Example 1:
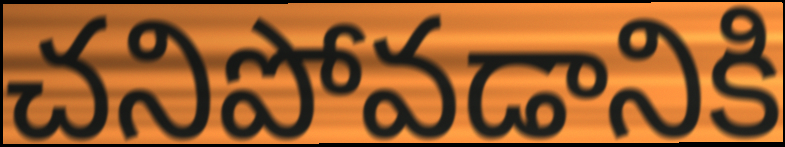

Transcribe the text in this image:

చనిపోవడానికి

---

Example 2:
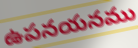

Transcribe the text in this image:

ఉపనయనము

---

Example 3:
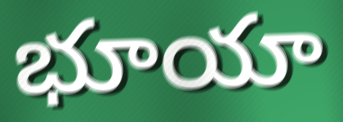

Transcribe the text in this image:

భూయా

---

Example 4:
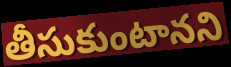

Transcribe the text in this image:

తీసుకుంటానని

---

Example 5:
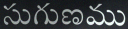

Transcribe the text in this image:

సుగుణము